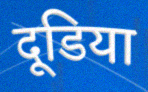
दूडिया